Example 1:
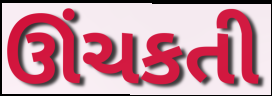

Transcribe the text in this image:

ઊંચકતી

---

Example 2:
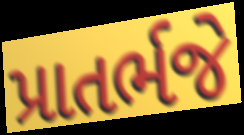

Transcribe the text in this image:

પ્રાતર્ભજે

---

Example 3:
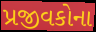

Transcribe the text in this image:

પ્રજીવકોના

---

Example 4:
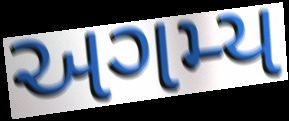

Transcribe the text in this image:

અગમ્ય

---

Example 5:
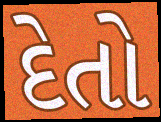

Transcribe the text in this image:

દેતો